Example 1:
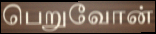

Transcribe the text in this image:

பெறுவோன்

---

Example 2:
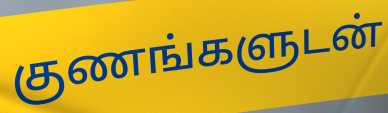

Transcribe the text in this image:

குணங்களுடன்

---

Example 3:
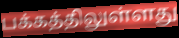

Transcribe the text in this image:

பக்கத்திலுள்ளது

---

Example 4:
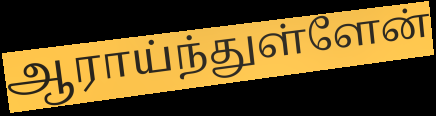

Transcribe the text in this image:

ஆராய்ந்துள்ளேன்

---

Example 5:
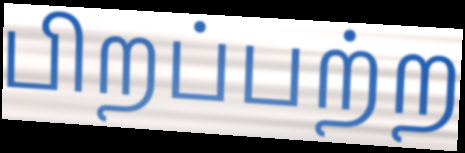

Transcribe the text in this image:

பிறப்பற்ற